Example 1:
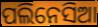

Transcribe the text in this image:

ପଲିନେସିଆ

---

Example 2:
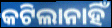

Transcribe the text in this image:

କଟିଲାନାହିଁ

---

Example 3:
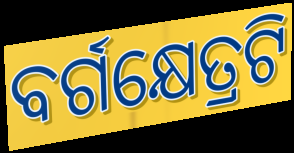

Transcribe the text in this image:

ବର୍ଗକ୍ଷେତ୍ରଟି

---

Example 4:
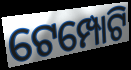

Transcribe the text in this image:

ଟେମ୍ପୋଟି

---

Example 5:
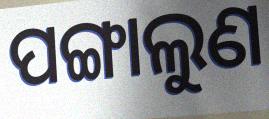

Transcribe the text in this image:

ପଙ୍ଗାଲୁଣ